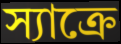
স্যাক্রে